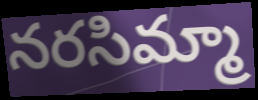
నరసిమ్మా